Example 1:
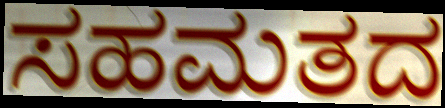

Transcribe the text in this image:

ಸಹಮತದ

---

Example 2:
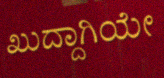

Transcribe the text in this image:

ಖುದ್ದಾಗಿಯೇ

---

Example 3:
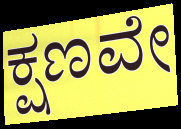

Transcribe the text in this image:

ಕ್ಷಣವೇ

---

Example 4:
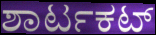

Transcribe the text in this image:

ಶಾರ್ಟಕಟ್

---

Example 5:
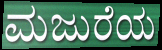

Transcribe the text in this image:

ಮಜುರೆಯ